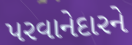
પરવાનેદારને